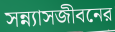
সন্ন্যাসজীবনের